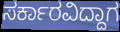
ಸರ್ಕಾರವಿದ್ದಾಗ